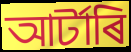
আৰ্টাৰি